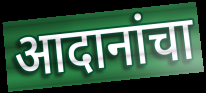
आदानांचा